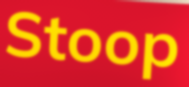
Stoop